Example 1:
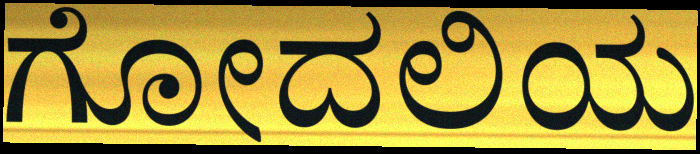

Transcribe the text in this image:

ಗೋದಲಿಯ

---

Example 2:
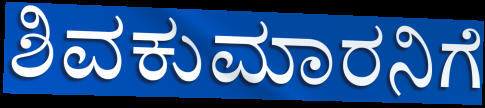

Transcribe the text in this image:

ಶಿವಕುಮಾರನಿಗೆ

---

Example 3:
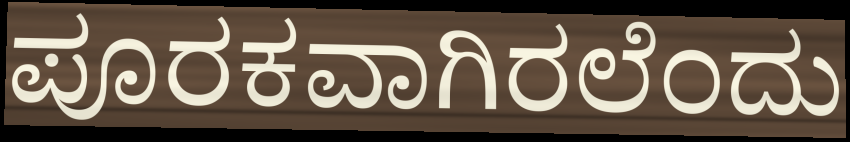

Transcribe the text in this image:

ಪೂರಕವಾಗಿರಲೆಂದು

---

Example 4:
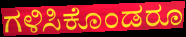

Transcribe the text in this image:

ಗಳಿಸಿಕೊಂಡರೂ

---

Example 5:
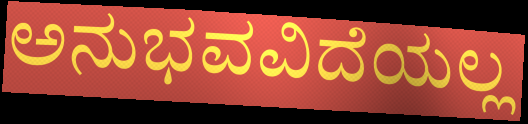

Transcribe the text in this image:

ಅನುಭವವಿದೆಯಲ್ಲ